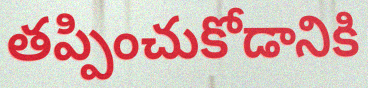
తప్పించుకోడానికి